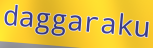
daggaraku